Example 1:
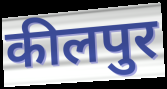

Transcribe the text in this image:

कीलपुर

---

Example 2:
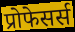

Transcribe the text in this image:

प्रोफेसर्स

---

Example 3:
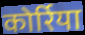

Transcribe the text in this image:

कोर्रिया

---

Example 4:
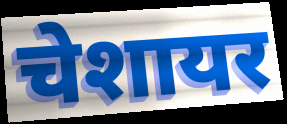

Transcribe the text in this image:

चेशायर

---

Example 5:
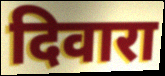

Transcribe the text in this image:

दिवारा